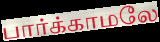
பார்க்காமலே